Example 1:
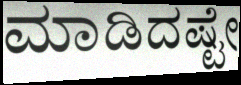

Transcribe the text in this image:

ಮಾಡಿದಷ್ಟೇ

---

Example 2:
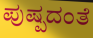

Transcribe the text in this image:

ಪುಷ್ಪದಂತೆ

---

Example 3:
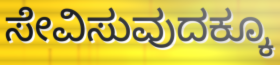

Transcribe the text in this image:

ಸೇವಿಸುವುದಕ್ಕೂ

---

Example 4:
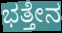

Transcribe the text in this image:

ಭತ್ತೇನ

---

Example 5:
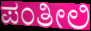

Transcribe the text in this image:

ಪಂತೀಲಿ